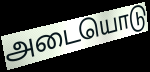
அடையொடு